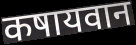
कषायवान